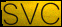
SVC